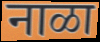
नाळा